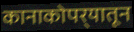
कानाकोपर्‍यातून